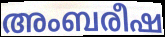
അംബരീഷ